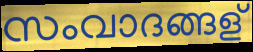
സംവാദങ്ങള്